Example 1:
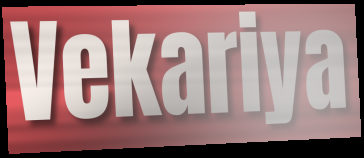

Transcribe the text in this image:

Vekariya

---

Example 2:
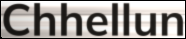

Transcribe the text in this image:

Chhellun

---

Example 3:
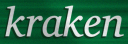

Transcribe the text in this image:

kraken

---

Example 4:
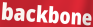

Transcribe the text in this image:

backbone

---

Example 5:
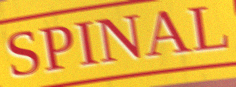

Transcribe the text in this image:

SPINAL